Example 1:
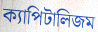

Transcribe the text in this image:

ক্যাপিটালিজম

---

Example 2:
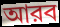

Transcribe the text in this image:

আরব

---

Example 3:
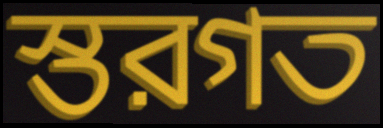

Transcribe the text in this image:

স্তরগত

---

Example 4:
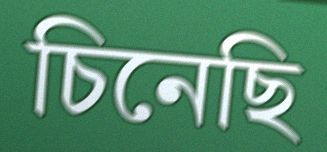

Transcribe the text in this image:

চিনেছি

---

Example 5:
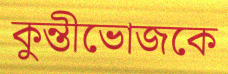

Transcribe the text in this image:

কুন্তীভোজকে